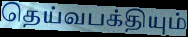
தெய்வபக்தியும்